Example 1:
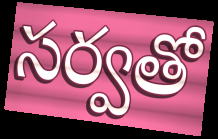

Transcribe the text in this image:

సర్వతో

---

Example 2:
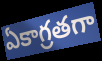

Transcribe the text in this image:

ఏకాగ్రతగా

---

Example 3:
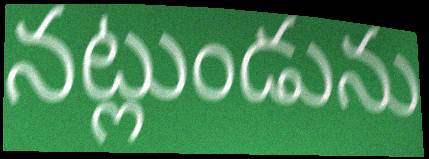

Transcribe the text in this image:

నట్లుండును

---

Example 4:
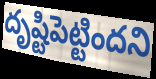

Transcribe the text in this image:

దృష్టిపెట్టిందని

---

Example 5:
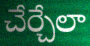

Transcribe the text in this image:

చేర్చేలా